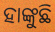
ହାଙ୍କୁଛି